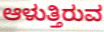
ಆಳುತ್ತಿರುವ